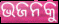
ଭଜନକୁ